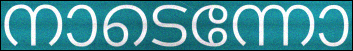
നാടെന്നോ